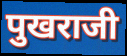
पुखराजी